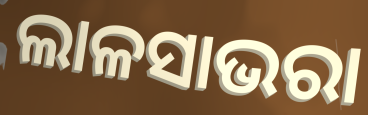
ଲାଳସାଭରା